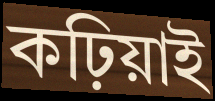
কঢ়িয়াই